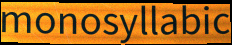
monosyllabic